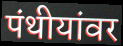
पंथीयांवर